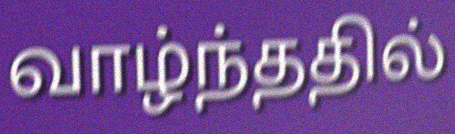
வாழ்ந்ததில்